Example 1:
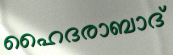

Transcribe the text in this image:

ഹൈദരാബാദ്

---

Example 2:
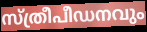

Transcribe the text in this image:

സ്ത്രീപീഡനവും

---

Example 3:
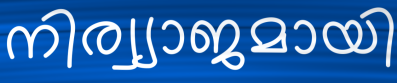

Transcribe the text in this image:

നിര്വ്യാജമായി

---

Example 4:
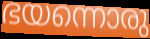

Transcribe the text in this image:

ഭയന്നൊരു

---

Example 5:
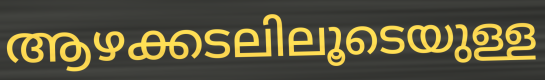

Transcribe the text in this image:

ആഴക്കടലിലൂടെയുള്ള